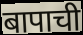
बापाची